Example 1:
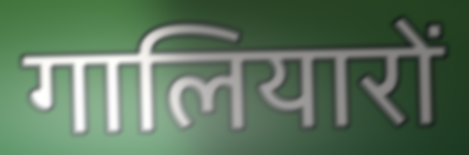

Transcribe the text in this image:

गालियारों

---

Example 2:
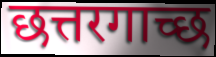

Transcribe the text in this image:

छत्तरगाच्छ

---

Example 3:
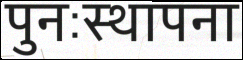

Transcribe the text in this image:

पुनःस्थापना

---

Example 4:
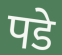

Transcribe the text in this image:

पडे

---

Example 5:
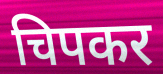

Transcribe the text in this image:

चिपकर